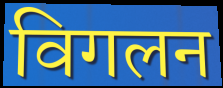
विगलन